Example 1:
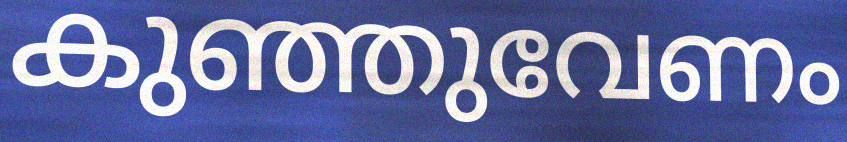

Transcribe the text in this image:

കുഞ്ഞുവേണം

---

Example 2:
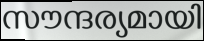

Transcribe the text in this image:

സൗന്ദര്യമായി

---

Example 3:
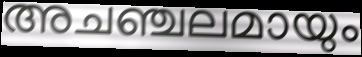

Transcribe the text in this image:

അചഞ്ചലമായും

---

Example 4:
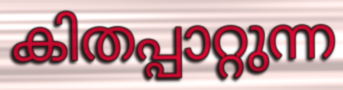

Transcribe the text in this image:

കിതപ്പാറ്റുന്ന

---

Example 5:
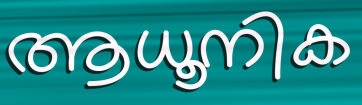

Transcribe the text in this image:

ആധൂനിക